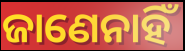
ଜାଣେନାହିଁ